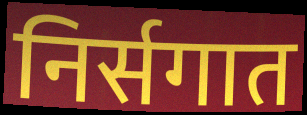
निर्सगात